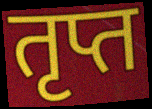
तृप्त